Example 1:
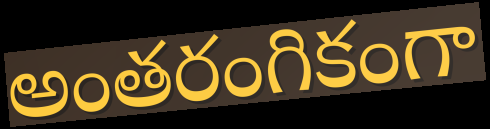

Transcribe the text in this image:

అంతరంగికంగా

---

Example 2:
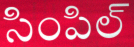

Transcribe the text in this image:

సింపిల్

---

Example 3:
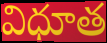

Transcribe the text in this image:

విధూత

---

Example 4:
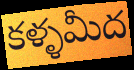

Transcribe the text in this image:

కళ్ళమీద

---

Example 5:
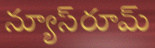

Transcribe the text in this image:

న్యూస్‌రూమ్